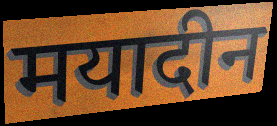
मयादीन